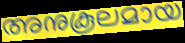
അനുകൂലമായ